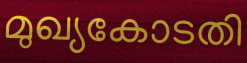
മുഖ്യകോടതി